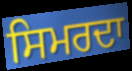
ਸਿਮਰਦਾ